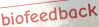
biofeedback